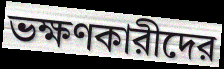
ভক্ষণকারীদের